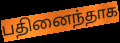
பதினைந்தாக